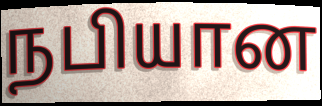
நபியான